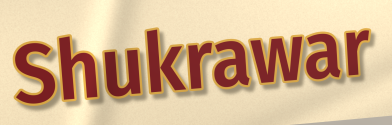
Shukrawar